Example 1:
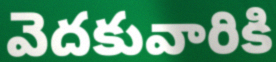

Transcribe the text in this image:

వెదకువారికి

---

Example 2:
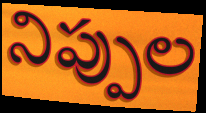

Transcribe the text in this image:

నిప్పుల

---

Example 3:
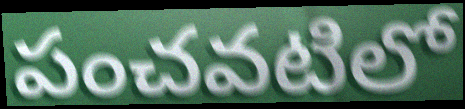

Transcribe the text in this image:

పంచవటిలో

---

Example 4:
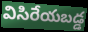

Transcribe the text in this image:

విసిరేయబడ్డ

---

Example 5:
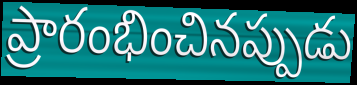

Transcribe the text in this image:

ప్రారంభించినప్పుడు